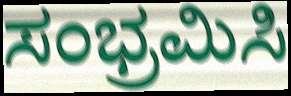
ಸಂಭ್ರಮಿಸಿ